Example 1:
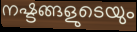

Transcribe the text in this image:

നഷ്ടങ്ങളുടെയും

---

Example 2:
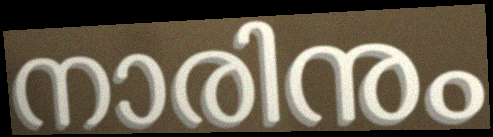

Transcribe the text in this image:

നാരിനും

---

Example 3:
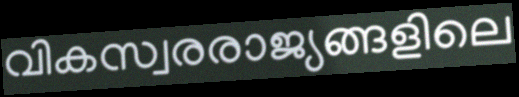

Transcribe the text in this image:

വികസ്വരരാജ്യങ്ങളിലെ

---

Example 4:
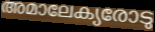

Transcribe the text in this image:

അമാലേക്യരോടു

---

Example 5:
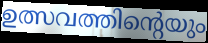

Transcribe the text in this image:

ഉത്സവത്തിന്റെയും